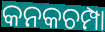
କନକଚମ୍ପା